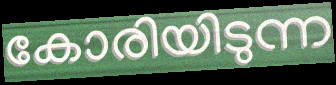
കോരിയിടുന്ന